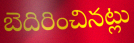
బెదిరించినట్లు